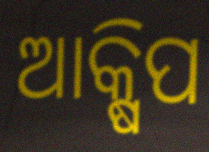
ଆକ୍ଷିପ